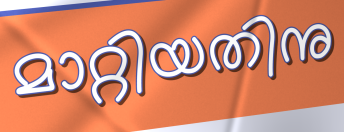
മാറ്റിയതിനു